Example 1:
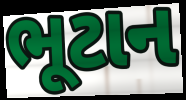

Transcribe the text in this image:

ભૂટાન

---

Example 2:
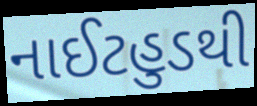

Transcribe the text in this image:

નાઈટહુડથી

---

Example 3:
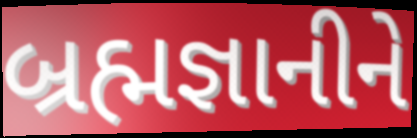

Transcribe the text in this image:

બ્રહ્મજ્ઞાનીને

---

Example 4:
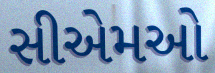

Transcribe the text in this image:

સીએમઓ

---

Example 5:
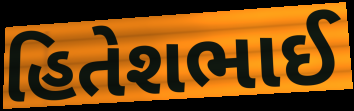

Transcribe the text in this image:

હિતેશભાઈ